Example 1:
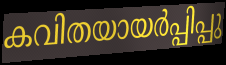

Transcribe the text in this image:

കവിതയായർപ്പിപ്പു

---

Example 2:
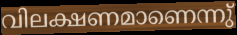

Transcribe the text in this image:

വിലക്ഷണമാണെന്നു്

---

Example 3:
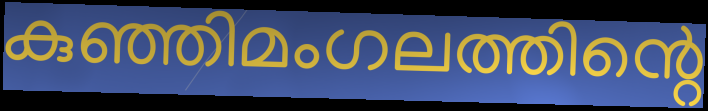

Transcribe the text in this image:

കുഞ്ഞിമംഗലത്തിന്റെ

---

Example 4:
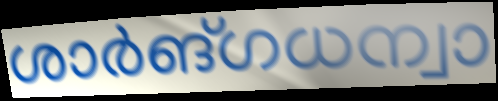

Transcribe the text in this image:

ശാർങ്ഗധന്വാ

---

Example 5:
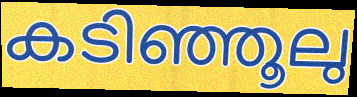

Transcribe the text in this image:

കടിഞ്ഞൂലു